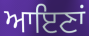
ਆਇਣਾਂ